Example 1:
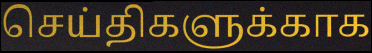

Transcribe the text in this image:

செய்திகளுக்காக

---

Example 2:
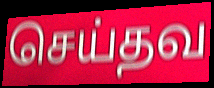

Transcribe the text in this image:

செய்தவ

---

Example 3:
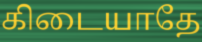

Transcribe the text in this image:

கிடையாதே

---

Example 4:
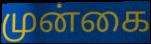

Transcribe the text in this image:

முன்கை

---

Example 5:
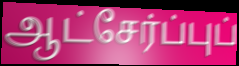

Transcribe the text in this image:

ஆட்சேர்ப்புப்